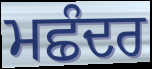
ਮਛੰਦਰ